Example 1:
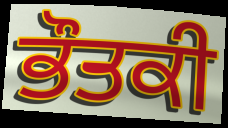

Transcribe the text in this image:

ਭੌਤਕੀ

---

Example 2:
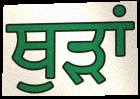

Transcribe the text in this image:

ਥੁੜਾਂ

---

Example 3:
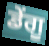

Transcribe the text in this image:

ਡੇਂਗੂ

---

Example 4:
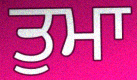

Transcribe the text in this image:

ਤੁਮਾ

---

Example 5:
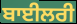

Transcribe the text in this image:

ਬਾਈਲਰੀ